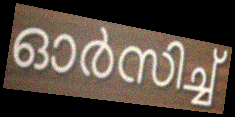
ഓർസിച്ച്